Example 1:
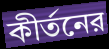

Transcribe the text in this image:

কীর্তনের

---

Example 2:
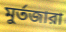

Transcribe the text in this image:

মুর্তজারা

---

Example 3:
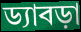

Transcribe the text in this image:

ড্যাবড়া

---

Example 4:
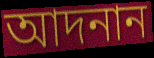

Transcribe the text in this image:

আদনান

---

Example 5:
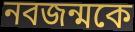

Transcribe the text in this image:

নবজন্মকে